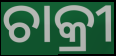
ଚାକ୍ରୀ